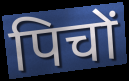
पिचों